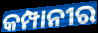
କମ୍ପାନୀର